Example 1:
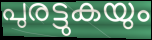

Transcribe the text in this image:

പുരട്ടുകയും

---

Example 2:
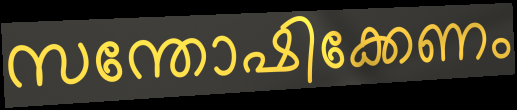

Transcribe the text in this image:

സന്തോഷിക്കേണം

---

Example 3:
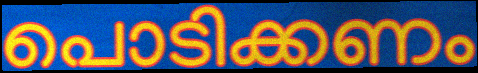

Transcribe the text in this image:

പൊടിക്കണം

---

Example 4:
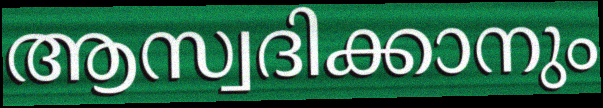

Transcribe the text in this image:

ആസ്വദിക്കാനും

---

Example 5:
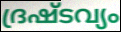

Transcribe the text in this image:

ദ്രഷ്ടവ്യം